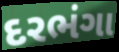
દરભંગા